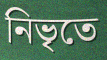
নিভৃতে